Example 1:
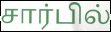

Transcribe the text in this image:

சார்பில்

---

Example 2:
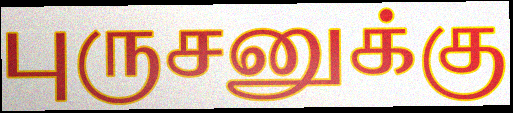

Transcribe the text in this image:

புருசனுக்கு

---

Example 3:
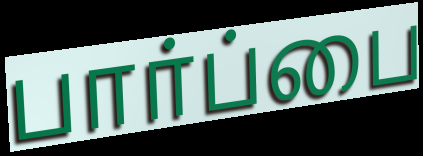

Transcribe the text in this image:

பார்ப்பை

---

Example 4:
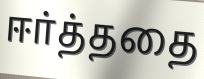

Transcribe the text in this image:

ஈர்த்ததை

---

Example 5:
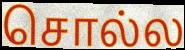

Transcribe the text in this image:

சொல்ல